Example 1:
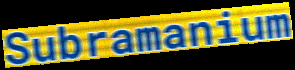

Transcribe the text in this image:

Subramanium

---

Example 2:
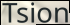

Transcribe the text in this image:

Tsion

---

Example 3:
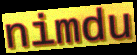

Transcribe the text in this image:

nimdu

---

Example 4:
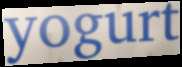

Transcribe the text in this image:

yogurt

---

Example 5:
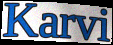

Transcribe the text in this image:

Karvi